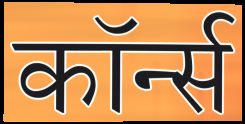
कॉर्न्स